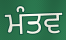
ਮੰਤਵ